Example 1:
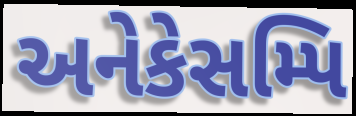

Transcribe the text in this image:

અનેકેસમ્પિ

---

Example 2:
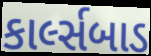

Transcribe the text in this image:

કાર્લ્સબાડ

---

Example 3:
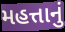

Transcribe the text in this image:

મહત્તાનું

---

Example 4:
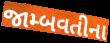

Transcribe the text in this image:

જામ્બવતીના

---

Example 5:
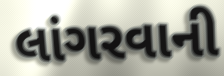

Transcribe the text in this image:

લાંગરવાની